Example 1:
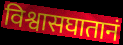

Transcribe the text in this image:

विश्वासघातानं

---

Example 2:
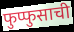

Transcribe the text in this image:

फुप्फुसाची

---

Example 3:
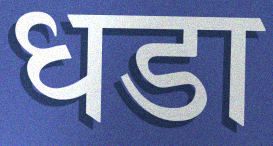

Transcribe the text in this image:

धडा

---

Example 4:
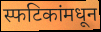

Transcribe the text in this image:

स्फटिकांमधून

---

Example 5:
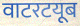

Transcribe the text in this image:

वाटरटयूब